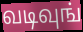
வடிவுங்